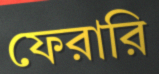
ফেরারি